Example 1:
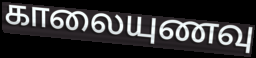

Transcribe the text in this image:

காலையுணவு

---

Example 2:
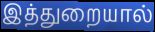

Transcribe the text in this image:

இத்துறையால்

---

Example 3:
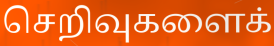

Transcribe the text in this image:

செறிவுகளைக்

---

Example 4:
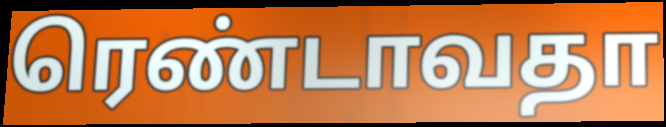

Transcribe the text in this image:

ரெண்டாவதா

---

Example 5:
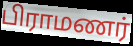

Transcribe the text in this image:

பிராமணர்